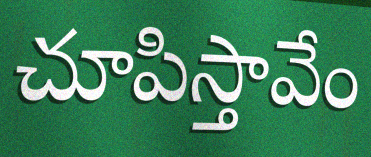
చూపిస్తావేం